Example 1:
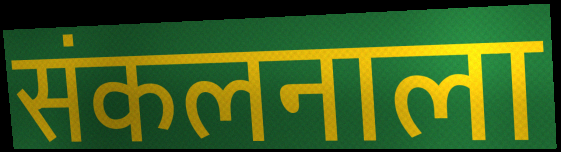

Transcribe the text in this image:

संकलनाला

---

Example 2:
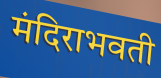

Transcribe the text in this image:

मंदिराभवती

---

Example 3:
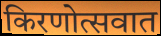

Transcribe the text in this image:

किरणोत्सवात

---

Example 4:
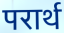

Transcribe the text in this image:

परार्थ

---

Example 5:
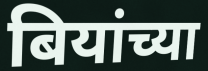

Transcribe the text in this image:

बियांच्या